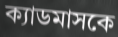
ক্যাডমাসকে